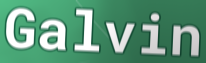
Galvin